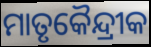
ମାତୃକୈନ୍ଦ୍ରୀକ